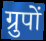
ग्रुपों